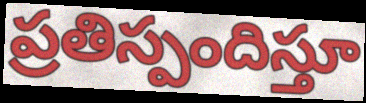
ప్రతిస్పందిస్తూ